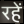
रहें